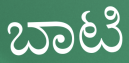
ಬಾಟಿ